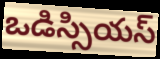
ఒడిస్సియస్